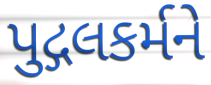
પુદ્ગલકર્મને